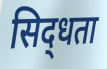
सिद्‌धता